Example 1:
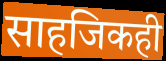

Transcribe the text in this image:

साहजिकही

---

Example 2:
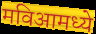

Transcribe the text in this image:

मविआमध्ये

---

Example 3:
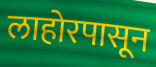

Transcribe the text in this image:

लाहोरपासून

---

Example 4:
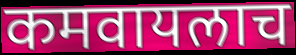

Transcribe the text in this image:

कमवायलाच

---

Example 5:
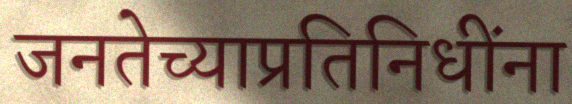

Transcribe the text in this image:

जनतेच्याप्रतिनिधींना